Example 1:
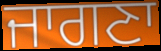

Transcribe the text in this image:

ਜਾਗਣਾ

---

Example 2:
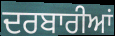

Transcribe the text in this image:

ਦਰਬਾਰੀਆਂ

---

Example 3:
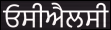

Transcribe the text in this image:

ਓਸੀਐਲਸੀ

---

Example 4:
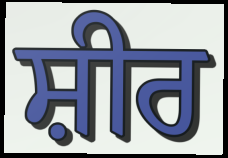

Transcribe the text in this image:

ਸ਼ੀਰ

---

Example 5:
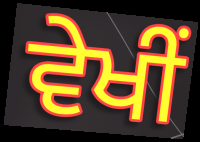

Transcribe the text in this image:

ਵੇਖੀਂ